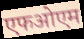
एफओएम